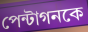
পেন্টাগনকে